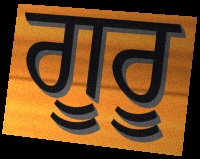
ਗੂਰੂ